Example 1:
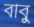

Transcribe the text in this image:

বাবু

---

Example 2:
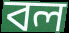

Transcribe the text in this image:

বল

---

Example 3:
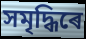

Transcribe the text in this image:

সমৃদ্ধিৰে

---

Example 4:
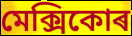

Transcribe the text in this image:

মেক্সিকোৰ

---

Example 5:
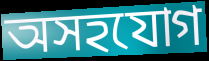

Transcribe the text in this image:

অসহযোগ